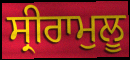
ਸ੍ਰੀਰਾਮੁਲੂ